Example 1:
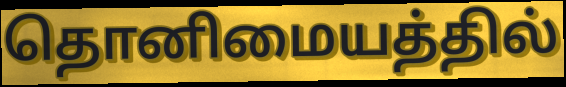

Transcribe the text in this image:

தொனிமையத்தில்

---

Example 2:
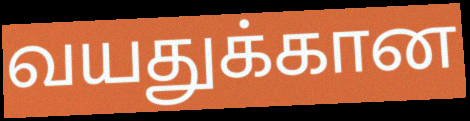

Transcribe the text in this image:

வயதுக்கான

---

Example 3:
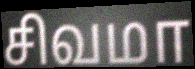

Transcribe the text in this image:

சிவமா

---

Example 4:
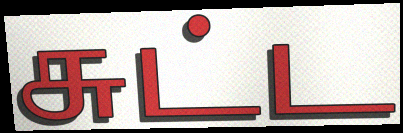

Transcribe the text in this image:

சுட்ட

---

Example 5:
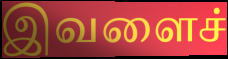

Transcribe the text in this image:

இவளைச்